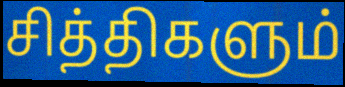
சித்திகளும்